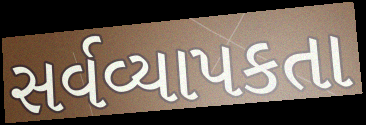
સર્વવ્યાપકતા